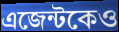
এজেন্টকেও